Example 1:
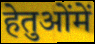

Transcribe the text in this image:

हेतुओंमें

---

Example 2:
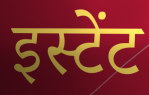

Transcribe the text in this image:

इस्टेंट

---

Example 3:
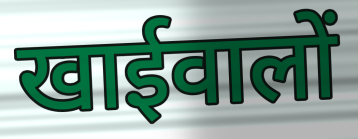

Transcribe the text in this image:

खाईवालों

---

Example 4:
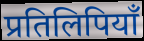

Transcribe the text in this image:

प्रतिलिपियाँ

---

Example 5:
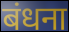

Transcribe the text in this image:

बंधना